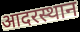
आदरस्थान